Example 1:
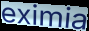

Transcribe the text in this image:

eximia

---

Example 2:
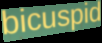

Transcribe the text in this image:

bicuspid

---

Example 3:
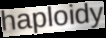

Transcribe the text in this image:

haploidy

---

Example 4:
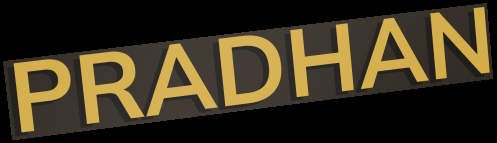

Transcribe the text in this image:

PRADHAN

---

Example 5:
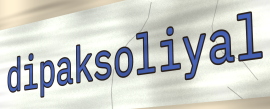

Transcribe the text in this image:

dipaksoliyal